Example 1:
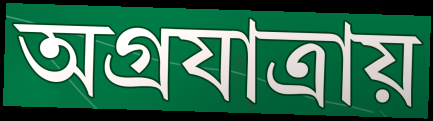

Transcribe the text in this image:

অগ্রযাত্রায়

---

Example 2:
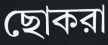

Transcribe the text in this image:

ছোকরা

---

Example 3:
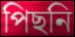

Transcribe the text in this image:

পিছনি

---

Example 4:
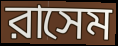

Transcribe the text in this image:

রাসেম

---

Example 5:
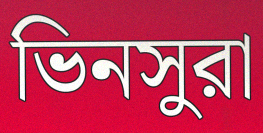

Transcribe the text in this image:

ভিনসুরা